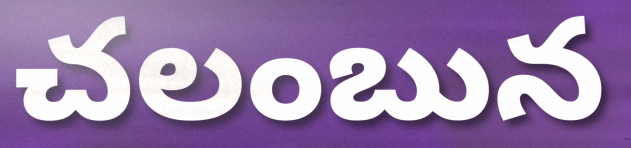
చలంబున